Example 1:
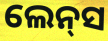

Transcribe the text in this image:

ଲେନ୍‌ସ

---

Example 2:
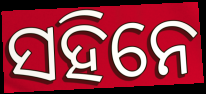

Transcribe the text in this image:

ସହିନେ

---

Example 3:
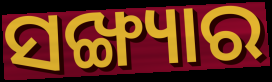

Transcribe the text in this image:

ସଙ୍ଖ୍ୟାର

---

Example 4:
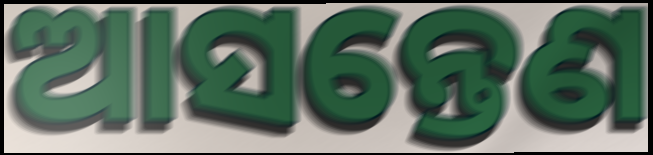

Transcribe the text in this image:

ଆସନ୍ତେଣ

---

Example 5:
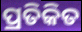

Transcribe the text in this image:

ପ୍ରତିକିତ